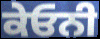
ਕੇਓਨੀ